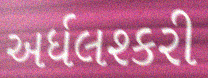
અર્ધલશ્કરી